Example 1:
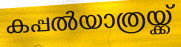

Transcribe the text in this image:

കപ്പൽയാത്രയ്ക്ക്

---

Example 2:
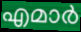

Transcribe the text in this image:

എമാർ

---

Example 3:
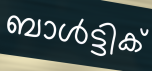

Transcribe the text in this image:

ബാൾട്ടിക്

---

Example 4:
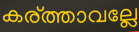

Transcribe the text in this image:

കര്ത്താവല്ലേ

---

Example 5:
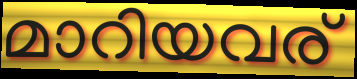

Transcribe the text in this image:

മാറിയവര്